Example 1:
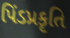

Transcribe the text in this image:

પિંડપ્રકૃતિ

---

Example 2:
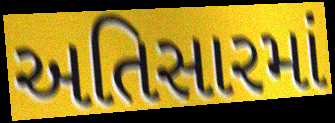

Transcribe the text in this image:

અતિસારમાં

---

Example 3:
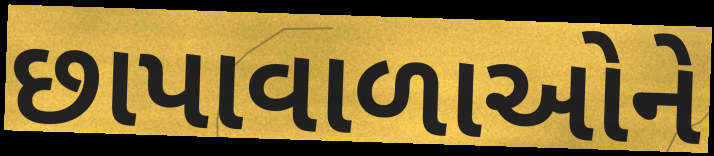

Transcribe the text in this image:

છાપાવાળાઓને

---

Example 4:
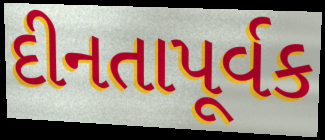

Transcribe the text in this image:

દીનતાપૂર્વક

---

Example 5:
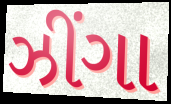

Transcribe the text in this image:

ઝીંગા